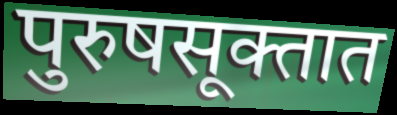
पुरुषसूक्तात